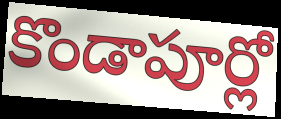
కొండాపూర్లో